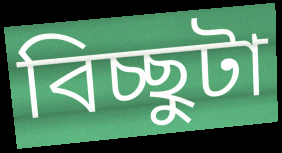
বিচ্ছুটা